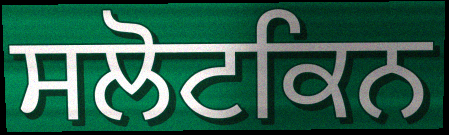
ਸਲੋਟਕਿਨ